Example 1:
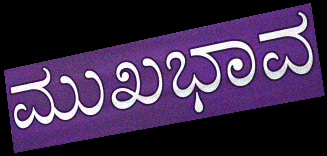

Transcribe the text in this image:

ಮುಖಭಾವ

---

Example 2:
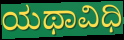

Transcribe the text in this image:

ಯಥಾವಿಧಿ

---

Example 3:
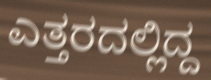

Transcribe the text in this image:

ಎತ್ತರದಲ್ಲಿದ್ದ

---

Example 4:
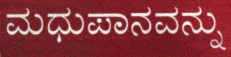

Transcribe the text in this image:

ಮಧುಪಾನವನ್ನು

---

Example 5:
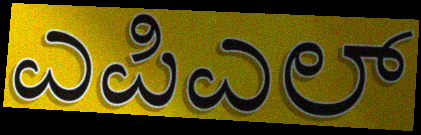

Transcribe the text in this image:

ಎಪಿಎಲ್